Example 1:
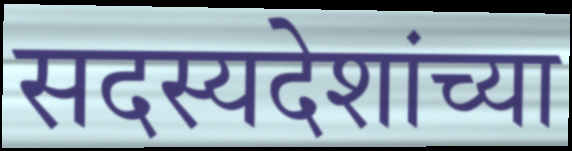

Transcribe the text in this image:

सदस्यदेशांच्या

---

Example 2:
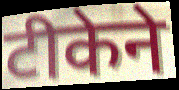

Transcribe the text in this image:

टीकेने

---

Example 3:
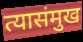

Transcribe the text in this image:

त्यासंमुख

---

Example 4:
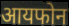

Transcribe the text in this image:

आयफोन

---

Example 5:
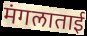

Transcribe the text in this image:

मंगलाताई